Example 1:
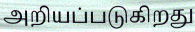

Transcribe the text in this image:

அறியப்படுகிறது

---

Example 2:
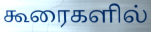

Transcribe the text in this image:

கூரைகளில்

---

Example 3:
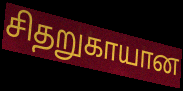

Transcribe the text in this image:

சிதறுகாயான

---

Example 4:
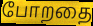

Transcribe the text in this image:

போறதை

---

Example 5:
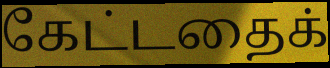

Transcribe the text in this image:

கேட்டதைக்